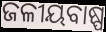
ଜଳୀୟବାଷ୍ପ